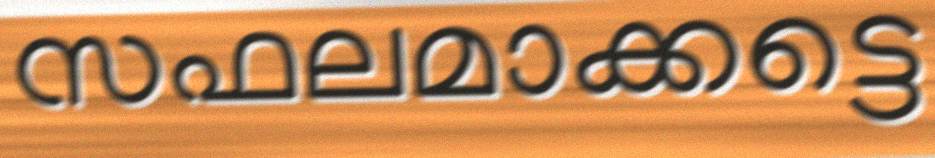
സഫലമാക്കട്ടെ